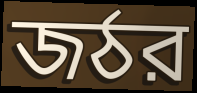
জঠর